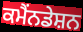
ਕਮੈਂਨਡੇਸ਼ਨ